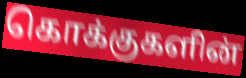
கொக்குகளின்